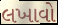
લખાવો